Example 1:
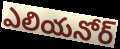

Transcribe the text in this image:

ఎలియనోర్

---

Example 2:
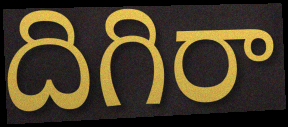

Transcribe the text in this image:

దిగిరా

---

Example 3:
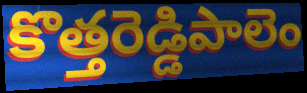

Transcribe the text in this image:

కొత్తరెడ్డిపాలెం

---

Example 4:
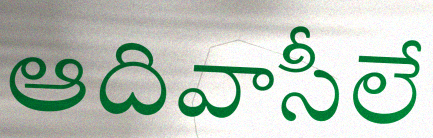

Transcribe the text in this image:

ఆదివాసీలే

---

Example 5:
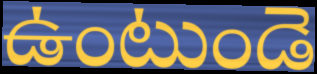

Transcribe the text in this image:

ఉంటుండె